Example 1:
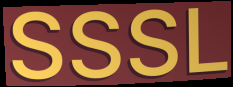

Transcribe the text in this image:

SSSL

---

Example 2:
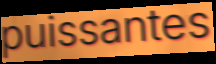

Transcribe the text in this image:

puissantes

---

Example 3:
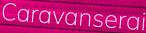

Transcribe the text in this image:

Caravanserai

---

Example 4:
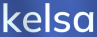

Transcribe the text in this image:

kelsa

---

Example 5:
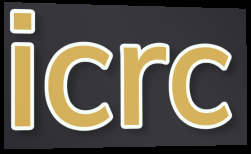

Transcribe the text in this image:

icrc